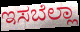
ಇಸಬೆಲ್ಲಾ